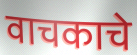
वाचकाचे